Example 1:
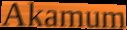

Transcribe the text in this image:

Akamum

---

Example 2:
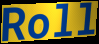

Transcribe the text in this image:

Roll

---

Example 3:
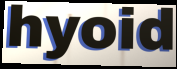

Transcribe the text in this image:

hyoid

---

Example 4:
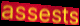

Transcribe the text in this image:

assests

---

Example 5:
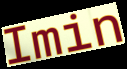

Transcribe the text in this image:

Imin